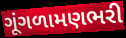
ગૂંગળામણભરી